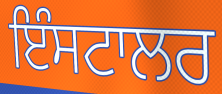
ਇੰਸਟਾਲਰ